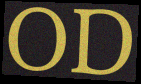
OD